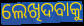
ଲେଖିଦବାକୁ